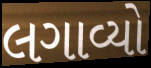
લગાવ્યો